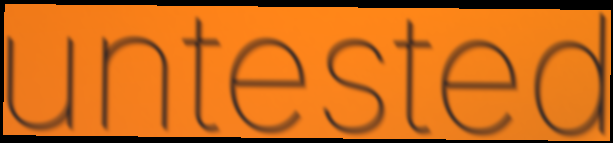
untested